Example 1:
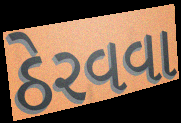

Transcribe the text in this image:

ઠેરવવા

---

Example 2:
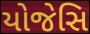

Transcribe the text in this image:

યોજેસિ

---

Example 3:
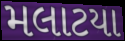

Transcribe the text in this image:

મલાટયા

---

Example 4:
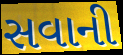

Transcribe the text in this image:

સવાની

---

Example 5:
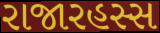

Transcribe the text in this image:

રાજારહસ્સ